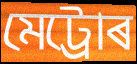
মেট্ৰোৰ